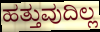
ಹತ್ತುವುದಿಲ್ಲ